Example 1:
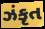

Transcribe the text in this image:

ઝંકૃત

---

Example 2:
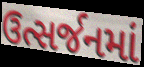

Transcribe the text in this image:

ઉત્સર્જનમાં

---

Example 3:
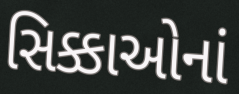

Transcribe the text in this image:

સિક્કાઓનાં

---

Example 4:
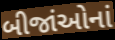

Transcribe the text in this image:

બીજાંઓનાં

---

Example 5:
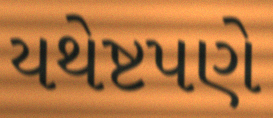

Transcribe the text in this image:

યથેષ્ટપણે